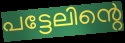
പട്ടേലിന്റെ